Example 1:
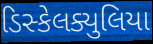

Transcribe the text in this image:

ડિસ્કેલક્યુલિયા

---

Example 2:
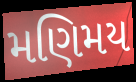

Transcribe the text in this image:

મણિમય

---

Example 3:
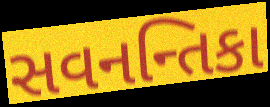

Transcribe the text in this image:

સવનન્તિકા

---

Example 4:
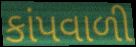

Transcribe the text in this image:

કાંપવાળી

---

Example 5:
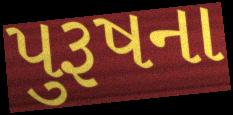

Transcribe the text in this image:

પુરૂષના